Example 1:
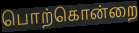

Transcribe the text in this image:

பொற்கொன்றை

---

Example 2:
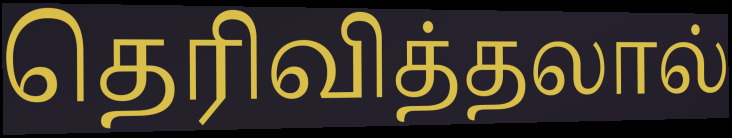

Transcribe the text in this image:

தெரிவித்தலால்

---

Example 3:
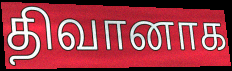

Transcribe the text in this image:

திவானாக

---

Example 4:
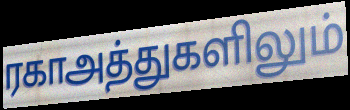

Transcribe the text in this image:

ரகாஅத்துகளிலும்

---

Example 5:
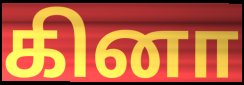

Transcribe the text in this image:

கினா